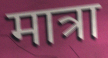
मात्रा